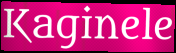
Kaginele